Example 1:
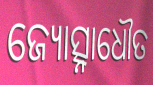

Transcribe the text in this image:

ଜ୍ୟୋତ୍ସ୍ନାଧୌତ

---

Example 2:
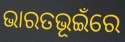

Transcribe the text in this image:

ଭାରତଭୂଇଁରେ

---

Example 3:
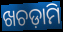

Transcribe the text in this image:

ଖଚଡ଼ାମି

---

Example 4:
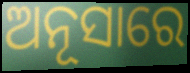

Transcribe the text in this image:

ଅନୂସାରେ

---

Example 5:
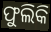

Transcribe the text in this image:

ଫୁଲିକି